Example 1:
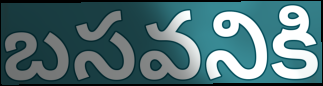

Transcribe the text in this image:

బసవనికి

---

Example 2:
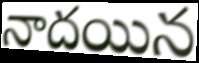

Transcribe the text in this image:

నాదయిన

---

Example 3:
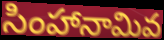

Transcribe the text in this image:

సింహానామివ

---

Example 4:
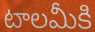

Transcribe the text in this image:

టాలమీకి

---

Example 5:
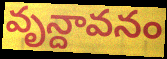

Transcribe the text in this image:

వృన్దావనం